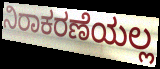
ನಿರಾಕರಣೆಯಲ್ಲ